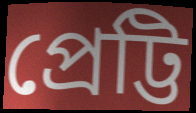
প্রেট্টি